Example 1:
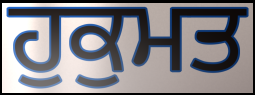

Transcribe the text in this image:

ਹੁਕੁਮਤ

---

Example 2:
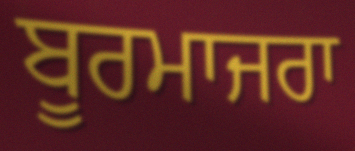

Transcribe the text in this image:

ਬੂਰਮਾਜਰਾ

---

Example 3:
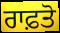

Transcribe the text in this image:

ਰਾਫ਼ਤੋ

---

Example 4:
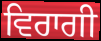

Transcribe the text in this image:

ਵਿਰਾਗੀ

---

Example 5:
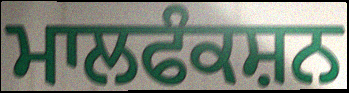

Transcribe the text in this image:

ਮਾਲਫੰਕਸ਼ਨ